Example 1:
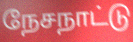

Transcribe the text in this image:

நேசநாட்டு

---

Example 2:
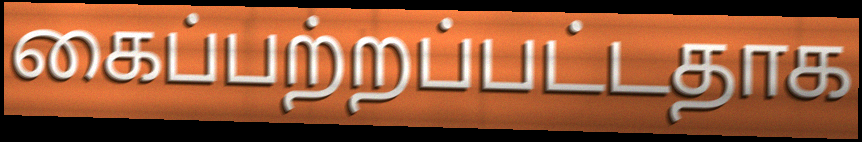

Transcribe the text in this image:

கைப்பற்றப்பட்டதாக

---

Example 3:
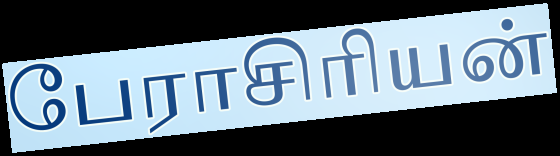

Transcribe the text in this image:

பேராசிரியன்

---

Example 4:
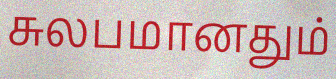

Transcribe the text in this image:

சுலபமானதும்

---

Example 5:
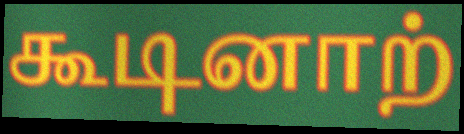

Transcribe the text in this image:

கூடினாற்